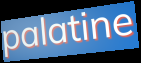
palatine